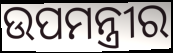
ଉପମନ୍ତ୍ରୀର